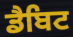
ਡੈਬਿਟ